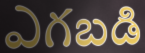
ఎగబడి